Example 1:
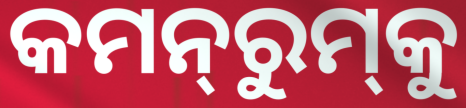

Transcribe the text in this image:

କମନ୍‍ରୁମ୍‍କୁ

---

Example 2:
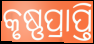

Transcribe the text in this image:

କୃଷ୍ଣପ୍ରାପ୍ତି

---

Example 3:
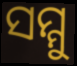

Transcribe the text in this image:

ସମ୍ମୁ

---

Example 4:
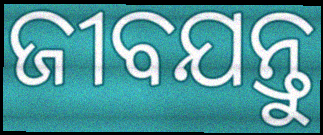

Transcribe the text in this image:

ଜୀବଯନ୍ତୁ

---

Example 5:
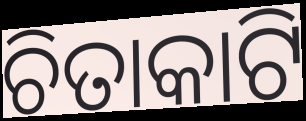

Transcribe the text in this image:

ଚିତାକାଟି